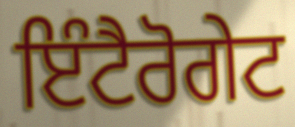
ਇੰਟੈਰੋਗੇਟ